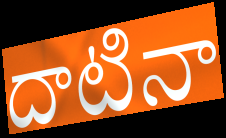
దాటినా